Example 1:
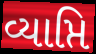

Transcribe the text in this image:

વ્યાપ્તિ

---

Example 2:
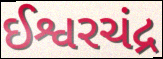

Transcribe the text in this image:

ઈશ્વરચંદ્ર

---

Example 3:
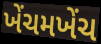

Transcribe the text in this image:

ખેંચમખેંચ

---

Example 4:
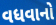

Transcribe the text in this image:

વધવાનો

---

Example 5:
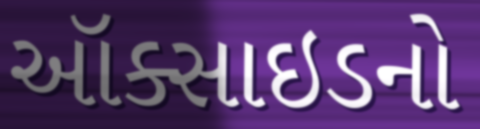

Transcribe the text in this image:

ઑક્સાઇડનો